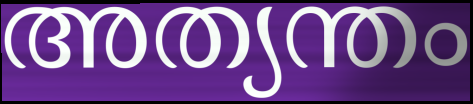
അത്യന്തം